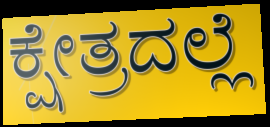
ಕ್ಷೇತ್ರದಲ್ಲೆ